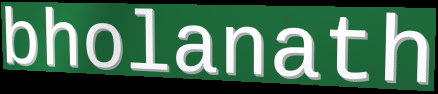
bholanath